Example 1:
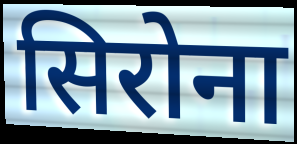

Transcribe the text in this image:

सिरोना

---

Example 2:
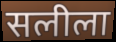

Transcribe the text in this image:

सलीला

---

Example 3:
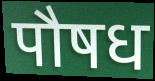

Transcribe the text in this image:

पौषध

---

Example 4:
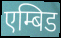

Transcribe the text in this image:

एम्बिड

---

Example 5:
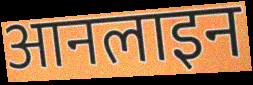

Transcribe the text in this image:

आनलाइन